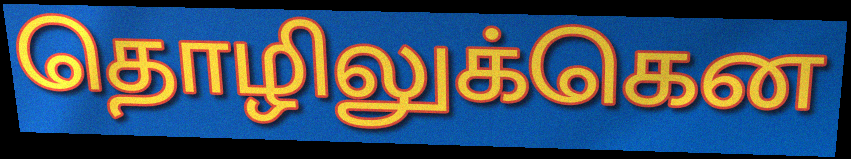
தொழிலுக்கென